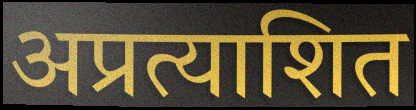
अप्रत्याशित